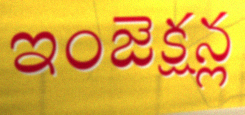
ఇంజెక్షన్ల